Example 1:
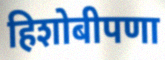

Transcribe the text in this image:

हिशोबीपणा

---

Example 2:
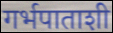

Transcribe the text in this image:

गर्भपाताशी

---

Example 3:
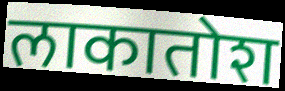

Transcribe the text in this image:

लाकातोश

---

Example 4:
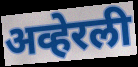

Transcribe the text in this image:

अव्हेरली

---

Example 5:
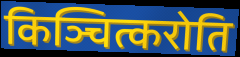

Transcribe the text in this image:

किञ्चित्करोति